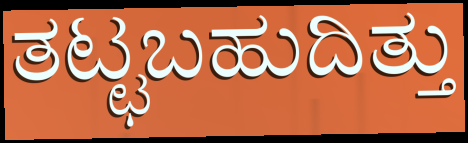
ತಟ್ಟಬಹುದಿತ್ತು